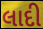
લાદી